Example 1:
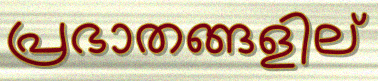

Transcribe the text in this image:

പ്രഭാതങ്ങളില്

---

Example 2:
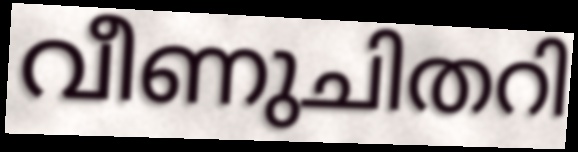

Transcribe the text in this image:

വീണുചിതറി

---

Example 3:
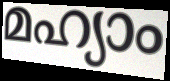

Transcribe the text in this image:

മഹ്യാം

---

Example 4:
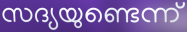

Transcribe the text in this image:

സദ്യയുണ്ടെന്ന്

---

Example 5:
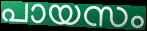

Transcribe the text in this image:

പായസം